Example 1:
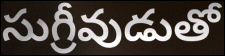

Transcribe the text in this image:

సుగ్రీవుడుతో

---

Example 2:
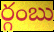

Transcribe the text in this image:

ర్గంబు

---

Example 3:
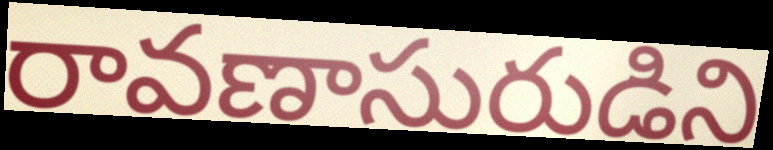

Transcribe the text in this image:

రావణాసురుడిని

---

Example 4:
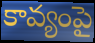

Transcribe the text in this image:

కావ్యంపై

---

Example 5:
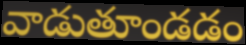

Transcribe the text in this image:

వాడుతూండడం